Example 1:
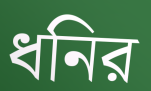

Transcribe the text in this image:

ধনির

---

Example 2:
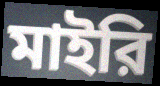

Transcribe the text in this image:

মাইরি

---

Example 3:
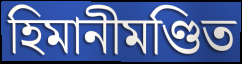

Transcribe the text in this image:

হিমানীমণ্ডিত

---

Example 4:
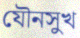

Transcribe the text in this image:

যৌনসুখ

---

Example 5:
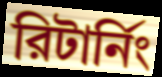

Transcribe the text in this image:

রিটার্নিং